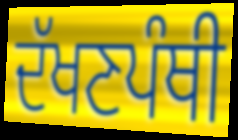
ਦੱਖਣਪੰਥੀ